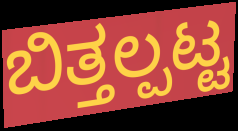
ಬಿತ್ತಲ್ಪಟ್ಟ